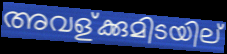
അവള്ക്കുമിടയില്